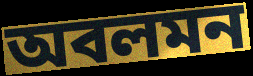
অবলমন